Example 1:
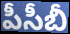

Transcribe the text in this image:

పీసీబీ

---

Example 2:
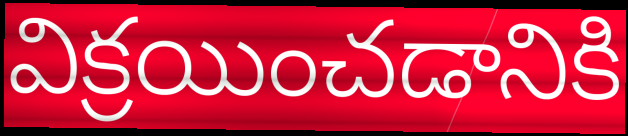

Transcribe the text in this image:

విక్రయించడానికి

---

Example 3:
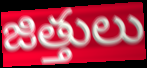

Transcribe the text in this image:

జిత్తులు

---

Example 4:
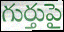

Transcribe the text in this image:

గుర్తుపై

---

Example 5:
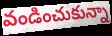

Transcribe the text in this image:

వండించుకున్నా